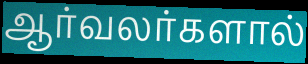
ஆர்வலர்களால்